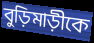
বুড়িমাড়ীকে